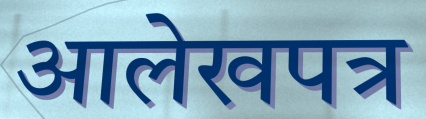
आलेखपत्र